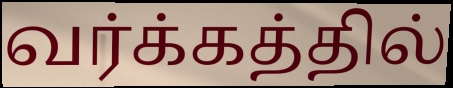
வர்க்கத்தில்